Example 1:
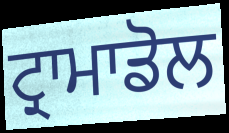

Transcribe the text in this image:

ਟ੍ਰਾਮਾਡੋਲ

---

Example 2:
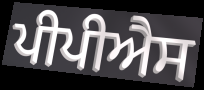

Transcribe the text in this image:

ਪੀਪੀਐਸ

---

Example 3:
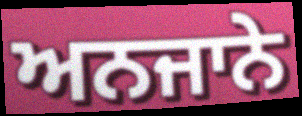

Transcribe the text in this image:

ਅਨਜਾਨੇ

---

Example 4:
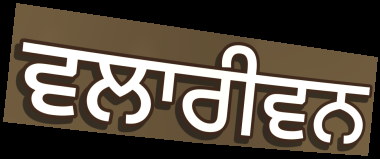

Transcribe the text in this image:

ਵਲਾਰੀਵਨ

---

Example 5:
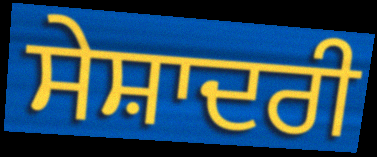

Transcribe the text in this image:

ਸੇਸ਼ਾਦਰੀ